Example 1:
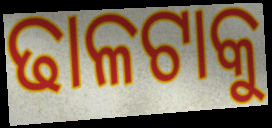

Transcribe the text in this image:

ଢାଳଟାକୁ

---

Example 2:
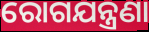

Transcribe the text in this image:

ରୋଗଯନ୍ତ୍ରଣା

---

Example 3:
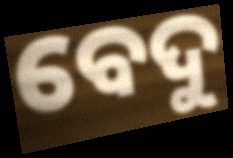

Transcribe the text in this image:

ବେଦୁ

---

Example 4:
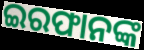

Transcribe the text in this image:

ଇରଫାନଙ୍କ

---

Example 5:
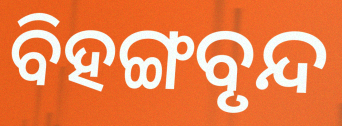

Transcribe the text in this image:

ବିହଙ୍ଗବୃନ୍ଦ